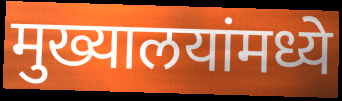
मुख्यालयांमध्ये